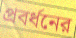
প্রবর্ধনের